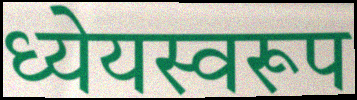
ध्येयस्वरूप